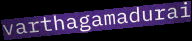
varthagamadurai